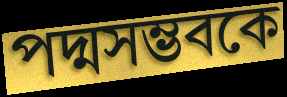
পদ্মসম্ভবকে